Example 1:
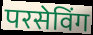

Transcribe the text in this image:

परसेविंग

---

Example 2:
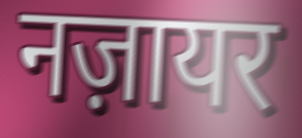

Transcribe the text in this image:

नज़ायर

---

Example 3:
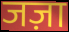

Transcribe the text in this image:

जज़ा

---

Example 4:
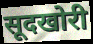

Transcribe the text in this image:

सूदखोरी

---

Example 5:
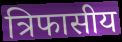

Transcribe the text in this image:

त्रिफासीय